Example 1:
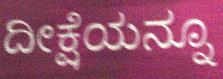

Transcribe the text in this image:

ದೀಕ್ಷೆಯನ್ನೂ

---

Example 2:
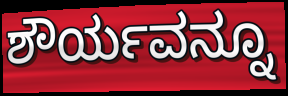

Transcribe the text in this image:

ಶೌರ್ಯವನ್ನೂ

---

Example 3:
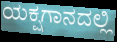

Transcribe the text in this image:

ಯಕ್ಷಗಾನದಲ್ಲಿ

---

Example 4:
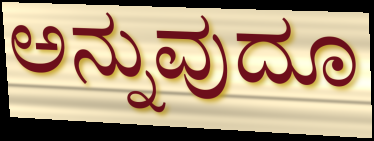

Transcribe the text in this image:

ಅನ್ನುವುದೂ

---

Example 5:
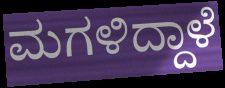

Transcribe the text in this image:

ಮಗಳಿದ್ದಾಳೆ